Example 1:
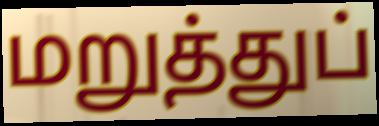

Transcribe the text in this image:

மறுத்துப்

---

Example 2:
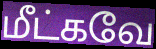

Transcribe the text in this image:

மீட்கவே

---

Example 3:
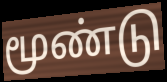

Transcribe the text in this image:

மூண்டு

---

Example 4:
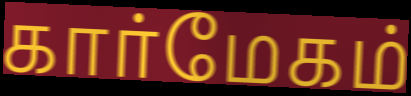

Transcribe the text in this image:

கார்மேகம்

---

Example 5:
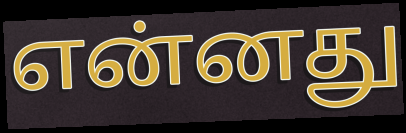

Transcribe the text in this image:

என்னது